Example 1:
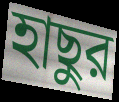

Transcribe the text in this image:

হাছুর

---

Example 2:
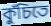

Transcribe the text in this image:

কুঁচিতে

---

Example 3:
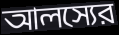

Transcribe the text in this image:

আলস্যের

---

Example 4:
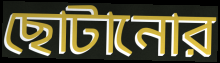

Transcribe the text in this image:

ছোটানোর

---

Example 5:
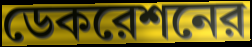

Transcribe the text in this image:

ডেকরেশনের